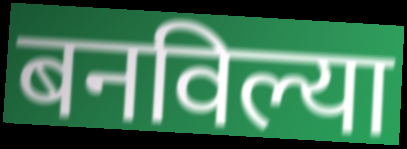
बनविल्या